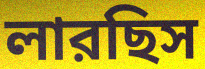
লারছিস